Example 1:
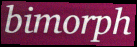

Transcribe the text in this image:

bimorph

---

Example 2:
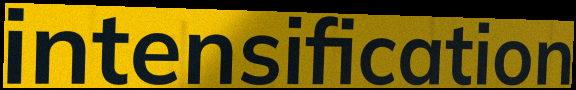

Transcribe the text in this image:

intensification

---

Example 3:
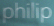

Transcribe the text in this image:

philip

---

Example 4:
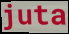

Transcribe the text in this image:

juta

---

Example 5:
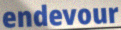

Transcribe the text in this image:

endevour